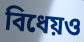
বিধেয়ও